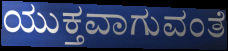
ಯುಕ್ತವಾಗುವಂತೆ